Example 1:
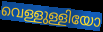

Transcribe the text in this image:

വെള്ളുള്ളിയോ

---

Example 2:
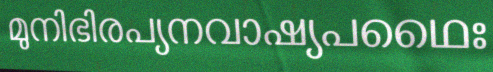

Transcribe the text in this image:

മുനിഭിരപ്യനവാഷ്യപഥൈഃ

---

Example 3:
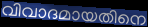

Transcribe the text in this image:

വിവാദമായതിനെ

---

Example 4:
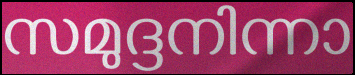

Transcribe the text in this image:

സമുദ്ദനിന്നാ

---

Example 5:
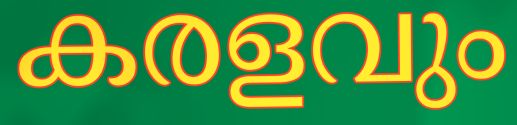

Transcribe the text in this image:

കരളവും